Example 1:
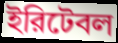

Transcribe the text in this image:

ইরিটেবল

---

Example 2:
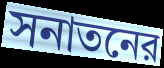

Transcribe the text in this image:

সনাতনের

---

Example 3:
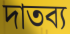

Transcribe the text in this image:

দাতব্য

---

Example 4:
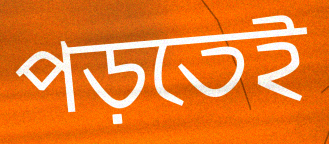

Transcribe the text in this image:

পড়তেই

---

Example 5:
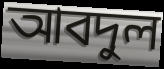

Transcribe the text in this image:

আবদুল